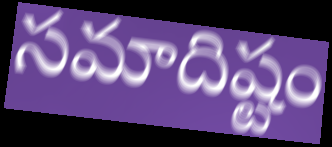
సమాదిష్టం